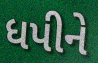
ધપીને